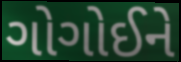
ગોગોઈને